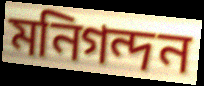
মনিগন্দন